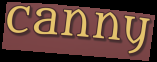
canny